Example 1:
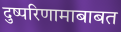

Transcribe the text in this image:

दुष्परिणामाबाबत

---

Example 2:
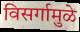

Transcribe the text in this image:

विसर्गामुळे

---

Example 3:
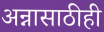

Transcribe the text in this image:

अन्नासाठीही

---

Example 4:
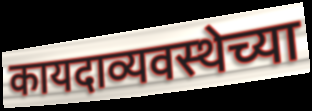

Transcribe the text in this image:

कायदाव्यवस्थेच्या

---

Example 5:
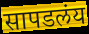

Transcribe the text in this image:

सापडलंय